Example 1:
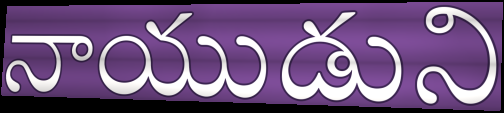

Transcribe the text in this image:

నాయుడుని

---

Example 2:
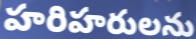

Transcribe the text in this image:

హరిహరులను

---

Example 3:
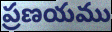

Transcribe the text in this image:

ప్రణయము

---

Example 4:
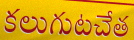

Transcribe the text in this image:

కలుగుటచేత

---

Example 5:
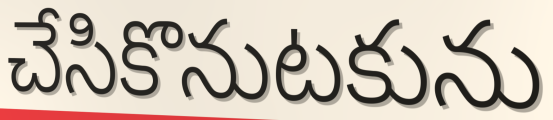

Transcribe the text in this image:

చేసికొనుటకును